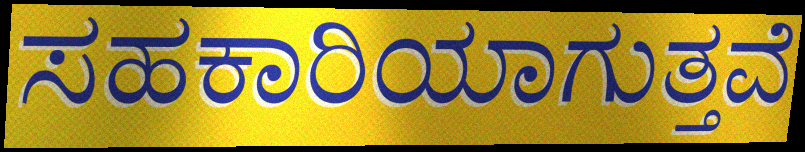
ಸಹಕಾರಿಯಾಗುತ್ತವೆ